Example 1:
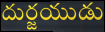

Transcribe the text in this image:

దుర్జయుడు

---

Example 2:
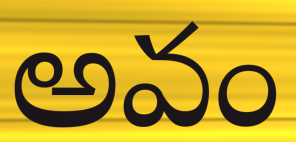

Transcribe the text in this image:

అవం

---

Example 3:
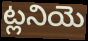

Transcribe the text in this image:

ట్లనియె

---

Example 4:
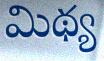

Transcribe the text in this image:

మిథ్య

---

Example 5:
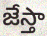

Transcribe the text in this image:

జేస్తా